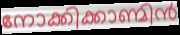
നോക്കിക്കാണ്മിൻ